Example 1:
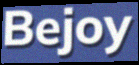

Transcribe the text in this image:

Bejoy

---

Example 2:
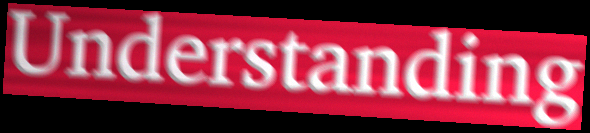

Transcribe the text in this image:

Understanding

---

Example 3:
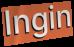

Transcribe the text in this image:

Ingin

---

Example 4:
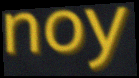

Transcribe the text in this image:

noy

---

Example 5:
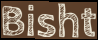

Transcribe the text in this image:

Bisht